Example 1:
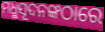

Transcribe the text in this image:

ମଧୁସୂଦନଙ୍କଠାରେ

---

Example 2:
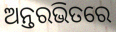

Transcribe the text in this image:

ଅନ୍ତରଭିତରେ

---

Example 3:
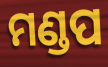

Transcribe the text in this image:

ମଣ୍ଡପ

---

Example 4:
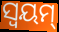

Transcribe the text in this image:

ସ୍ୱୟମ୍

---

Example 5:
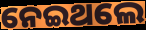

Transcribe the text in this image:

ନେଇଥଲେ